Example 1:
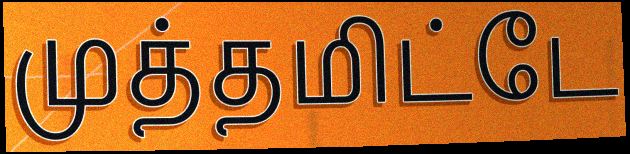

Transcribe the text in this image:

முத்தமிட்டே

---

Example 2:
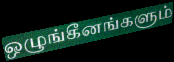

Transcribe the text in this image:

ஒழுங்கீனங்களும்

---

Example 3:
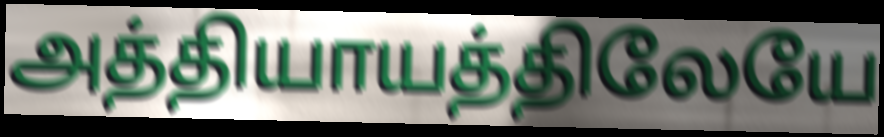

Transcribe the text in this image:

அத்தியாயத்திலேயே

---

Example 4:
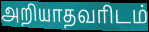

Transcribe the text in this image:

அறியாதவரிடம்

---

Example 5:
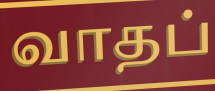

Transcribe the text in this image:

வாதப்